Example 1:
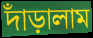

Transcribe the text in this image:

দাঁড়ালাম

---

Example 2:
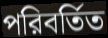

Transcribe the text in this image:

পরিবর্তিত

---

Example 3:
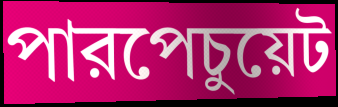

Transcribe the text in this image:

পারপেচুয়েট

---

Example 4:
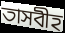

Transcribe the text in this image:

তাসবীহ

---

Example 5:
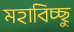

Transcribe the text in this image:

মহাবিচ্ছু